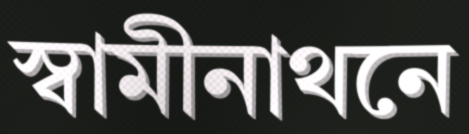
স্বামীনাথনে